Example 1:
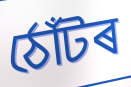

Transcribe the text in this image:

ঠোঁটৰ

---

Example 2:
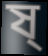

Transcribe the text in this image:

ষ্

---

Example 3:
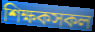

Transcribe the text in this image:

শিক্ষকসকল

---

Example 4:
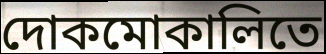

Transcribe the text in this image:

দোকমোকালিতে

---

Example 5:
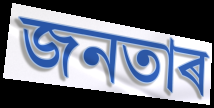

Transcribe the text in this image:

জনতাৰ